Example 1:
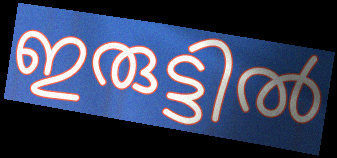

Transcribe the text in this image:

ഇരുട്ടിൽ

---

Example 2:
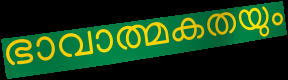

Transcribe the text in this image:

ഭാവാത്മകതയും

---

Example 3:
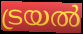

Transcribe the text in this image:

ട്രയൽ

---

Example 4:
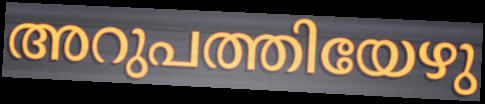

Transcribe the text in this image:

അറുപത്തിയേഴു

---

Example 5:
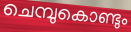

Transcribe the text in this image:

ചെമ്പുകൊണ്ടും